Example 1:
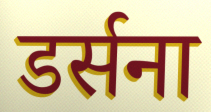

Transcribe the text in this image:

डर्सना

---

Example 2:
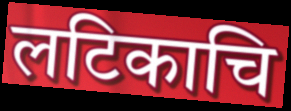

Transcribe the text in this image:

लटिकाचि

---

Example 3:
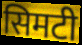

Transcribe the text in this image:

सिमटी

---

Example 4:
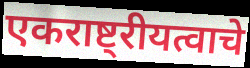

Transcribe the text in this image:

एकराष्ट्रीयत्वाचे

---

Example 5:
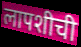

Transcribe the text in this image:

लापशीची